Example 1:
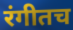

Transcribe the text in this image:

रंगीतच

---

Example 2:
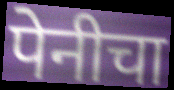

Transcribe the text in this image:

पेनीचा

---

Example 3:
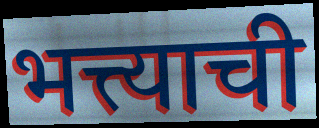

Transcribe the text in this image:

भत्त्याची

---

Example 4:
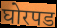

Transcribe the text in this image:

घोरपड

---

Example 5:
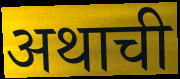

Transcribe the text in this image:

अथाची